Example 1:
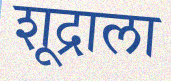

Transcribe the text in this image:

शूद्राला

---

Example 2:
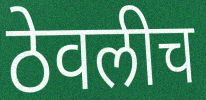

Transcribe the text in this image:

ठेवलीच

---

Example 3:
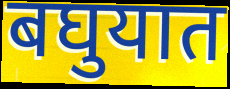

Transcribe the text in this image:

बघुयात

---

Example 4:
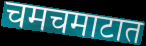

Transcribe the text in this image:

चमचमाटात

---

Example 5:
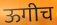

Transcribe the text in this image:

ऊगीच